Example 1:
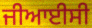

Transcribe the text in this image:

ਜੀਆਈਸੀ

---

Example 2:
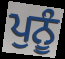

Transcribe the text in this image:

ਪੁਨੂੰ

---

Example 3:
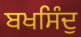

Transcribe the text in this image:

ਬਖਸਿੰਦੁ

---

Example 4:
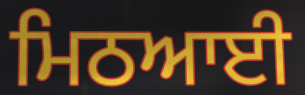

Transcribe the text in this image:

ਮਿਠਆਈ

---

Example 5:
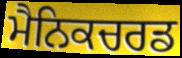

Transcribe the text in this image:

ਮੈਨਿਕਚਰਡ